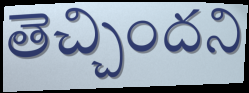
తెచ్చిందని